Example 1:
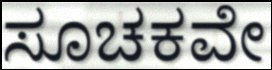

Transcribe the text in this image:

ಸೂಚಕವೇ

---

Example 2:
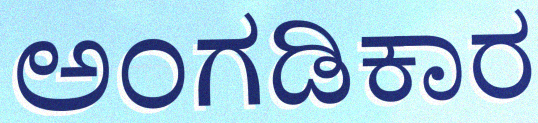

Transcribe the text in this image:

ಅಂಗಡಿಕಾರ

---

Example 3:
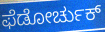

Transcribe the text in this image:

ಫೆಡೋರ್ಚುಕ್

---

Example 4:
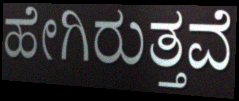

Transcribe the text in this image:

ಹೇಗಿರುತ್ತವೆ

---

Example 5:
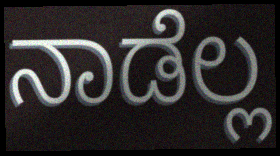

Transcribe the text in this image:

ನಾಡೆಲ್ಲ